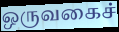
ஒருவகைச்